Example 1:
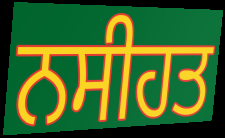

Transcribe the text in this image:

ਨਸੀਹਤ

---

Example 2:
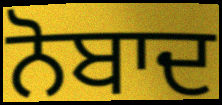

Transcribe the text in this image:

ਨੋਬਾਦ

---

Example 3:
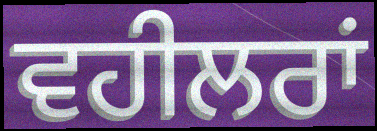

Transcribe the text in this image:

ਵਹੀਲਰਾਂ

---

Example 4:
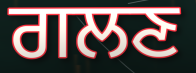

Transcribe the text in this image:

ਗਲਣ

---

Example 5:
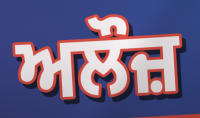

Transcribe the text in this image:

ਅਲੌਜ਼